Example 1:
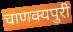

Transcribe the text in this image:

चाणक्यपुरी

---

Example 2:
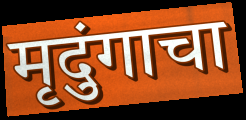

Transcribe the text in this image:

मृदुंगाचा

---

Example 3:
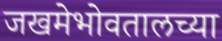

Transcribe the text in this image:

जखमेभोवतालच्या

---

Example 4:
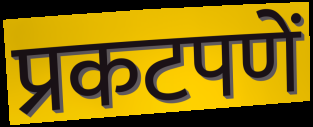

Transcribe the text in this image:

प्रकटपणें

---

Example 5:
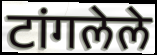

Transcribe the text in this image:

टांगलेले